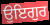
ਉਇਗੁਰ